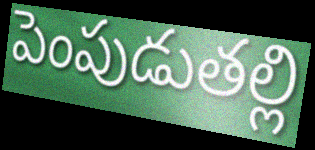
పెంపుడుతల్లి